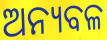
ଅନ୍ୟବଳ